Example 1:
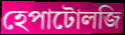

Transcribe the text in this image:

হেপাটোলজি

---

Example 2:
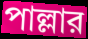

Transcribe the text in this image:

পাল্লার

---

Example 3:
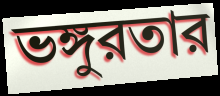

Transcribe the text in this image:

ভঙ্গুরতার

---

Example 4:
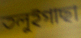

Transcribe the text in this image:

তলুইগাছা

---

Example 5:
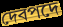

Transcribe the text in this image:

দেবপদে